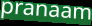
pranaam